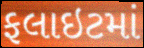
ફલાઇટમાં